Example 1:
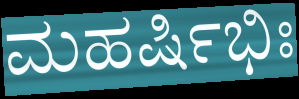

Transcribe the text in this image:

ಮಹರ್ಷಿಭಿಃ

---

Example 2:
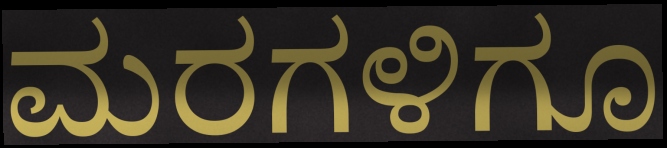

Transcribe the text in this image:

ಮರಗಳಿಗೂ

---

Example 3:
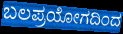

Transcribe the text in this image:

ಬಲಪ್ರಯೋಗದಿಂದ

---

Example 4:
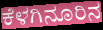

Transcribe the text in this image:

ಕೆಳಗಿನೂರಿನ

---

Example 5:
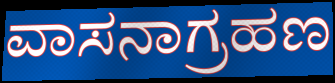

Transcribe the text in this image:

ವಾಸನಾಗ್ರಹಣ